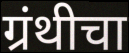
ग्रंथीचा